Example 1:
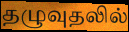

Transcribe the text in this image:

தழுவுதலில்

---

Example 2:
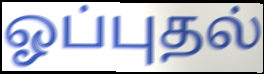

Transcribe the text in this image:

ஓப்புதல்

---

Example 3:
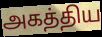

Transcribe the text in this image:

அகத்திய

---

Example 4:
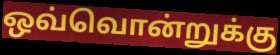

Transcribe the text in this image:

ஒவ்வொன்றுக்கு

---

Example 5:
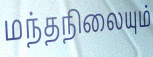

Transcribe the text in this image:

மந்தநிலையும்